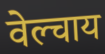
वेल्चाय